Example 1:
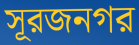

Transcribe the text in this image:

সূরজনগর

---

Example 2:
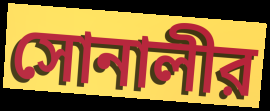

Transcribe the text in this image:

সোনালীর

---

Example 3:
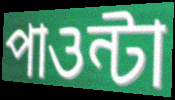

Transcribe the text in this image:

পাওন্টা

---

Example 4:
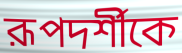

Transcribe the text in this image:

রূপদর্শীকে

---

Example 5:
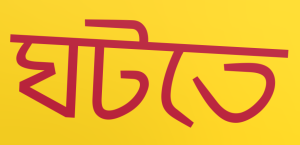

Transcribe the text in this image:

ঘটতে